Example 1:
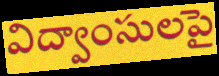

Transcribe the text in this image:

విద్వాంసులపై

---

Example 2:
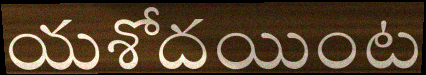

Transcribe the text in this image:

యశోదయింట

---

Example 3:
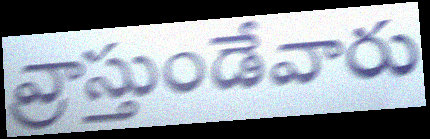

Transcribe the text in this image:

వ్రాస్తుండేవారు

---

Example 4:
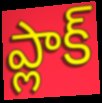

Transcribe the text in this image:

ప్లాక్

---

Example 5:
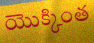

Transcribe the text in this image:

యొక్కింత